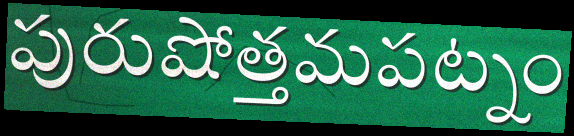
పురుషోత్తమపట్నం